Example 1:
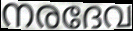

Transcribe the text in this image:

നരദേവ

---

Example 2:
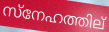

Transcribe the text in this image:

സ്നേഹത്തില്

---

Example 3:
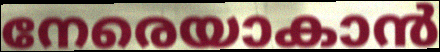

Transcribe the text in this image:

നേരെയാകാൻ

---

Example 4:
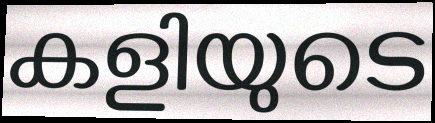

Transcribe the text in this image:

കളിയുടെ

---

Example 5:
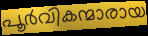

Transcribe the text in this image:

പൂർവികന്മാരായ